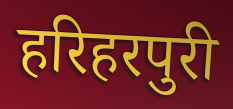
हरिहरपुरी